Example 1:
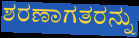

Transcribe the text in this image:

ಶರಣಾಗತರನ್ನು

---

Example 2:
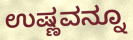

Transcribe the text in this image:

ಉಷ್ಣವನ್ನೂ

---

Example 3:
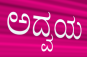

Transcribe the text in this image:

ಅದ್ವಯ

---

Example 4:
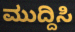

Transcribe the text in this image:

ಮುದ್ದಿಸಿ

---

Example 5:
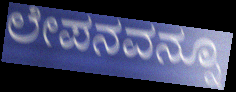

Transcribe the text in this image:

ಲೇಪನವನ್ನೂ